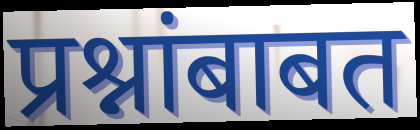
प्रश्नांबाबत